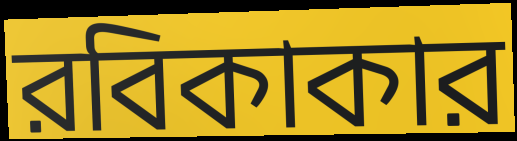
রবিকাকার